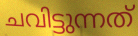
ചവിട്ടുന്നത്